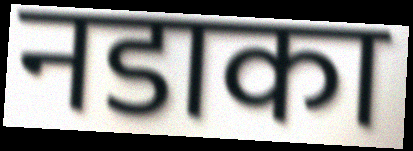
नडाका